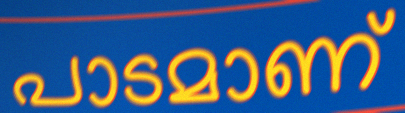
പാടമാണ്